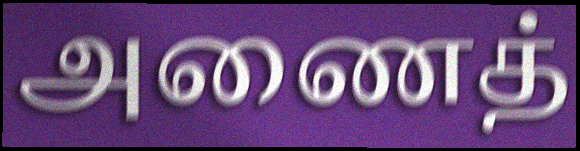
அணைத்